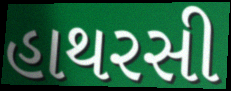
હાથરસી